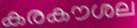
കരകൗശല